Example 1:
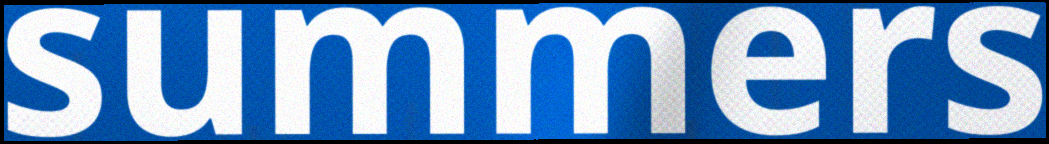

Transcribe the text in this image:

summers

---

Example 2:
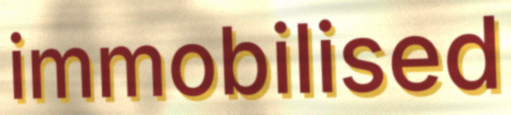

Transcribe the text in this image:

immobilised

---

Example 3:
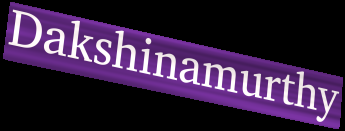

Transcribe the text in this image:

Dakshinamurthy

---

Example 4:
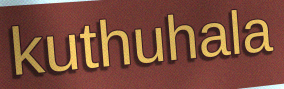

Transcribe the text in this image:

kuthuhala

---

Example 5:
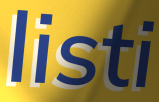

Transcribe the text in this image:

listi